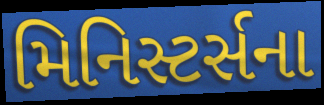
મિનિસ્ટર્સના